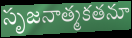
సృజనాత్మకతనూ